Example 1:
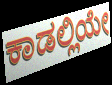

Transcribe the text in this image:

ಕಾಡಲ್ಲಿಯೇ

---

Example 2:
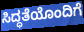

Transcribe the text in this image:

ಸಿದ್ಧತೆಯೊಂದಿಗೆ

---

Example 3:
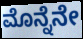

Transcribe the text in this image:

ಮೊನ್ನೆನೇ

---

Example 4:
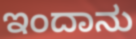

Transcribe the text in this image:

ಇಂದಾನು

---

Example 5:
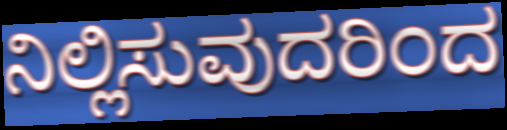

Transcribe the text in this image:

ನಿಲ್ಲಿಸುವುದರಿಂದ